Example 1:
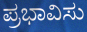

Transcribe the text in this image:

ಪ್ರಭಾವಿಸು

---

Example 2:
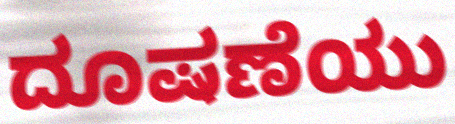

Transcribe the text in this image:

ದೂಷಣೆಯು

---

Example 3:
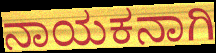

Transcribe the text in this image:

ನಾಯಕನಾಗಿ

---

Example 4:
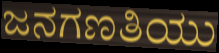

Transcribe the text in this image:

ಜನಗಣತಿಯು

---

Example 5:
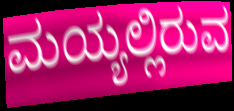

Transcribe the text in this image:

ಮಯ್ಯಲ್ಲಿರುವ